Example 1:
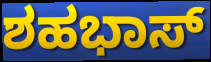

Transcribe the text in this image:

ಶಹಭಾಸ್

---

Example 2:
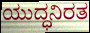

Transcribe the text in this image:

ಯುದ್ಧನಿರತ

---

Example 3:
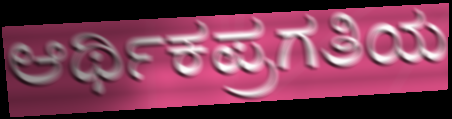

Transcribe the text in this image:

ಆರ್ಥಿಕಪ್ರಗತಿಯ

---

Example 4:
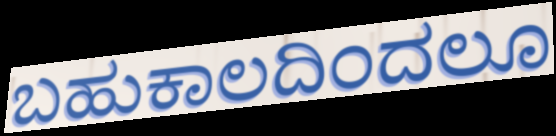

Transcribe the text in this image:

ಬಹುಕಾಲದಿಂದಲೂ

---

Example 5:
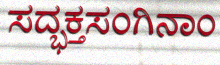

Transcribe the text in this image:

ಸದ್ಭಕ್ತಸಂಗಿನಾಂ